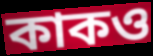
কাকও